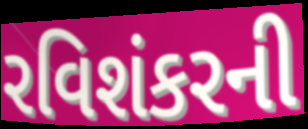
રવિશંકરની